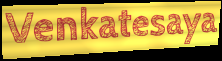
Venkatesaya